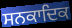
ਸਨਕਾਦਿਕ